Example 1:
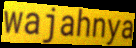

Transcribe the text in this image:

wajahnya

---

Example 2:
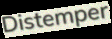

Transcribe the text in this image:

Distemper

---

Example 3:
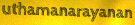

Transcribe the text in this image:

uthamanarayanan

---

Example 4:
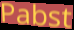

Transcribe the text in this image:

Pabst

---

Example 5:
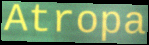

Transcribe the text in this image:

Atropa